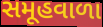
સમૂહવાળા